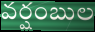
వర్షంబుల